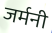
जर्मनी